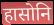
हासोनि